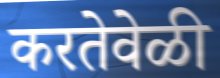
करतेवेळी